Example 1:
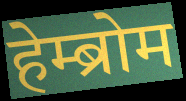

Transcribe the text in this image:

हेम्ब्रोम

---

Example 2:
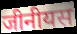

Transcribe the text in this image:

जीनीयस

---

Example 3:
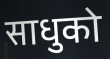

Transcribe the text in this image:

साधुको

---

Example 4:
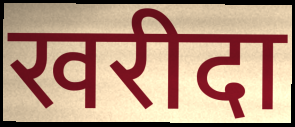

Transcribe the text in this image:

खरीदा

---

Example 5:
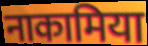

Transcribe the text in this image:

नाकामिया